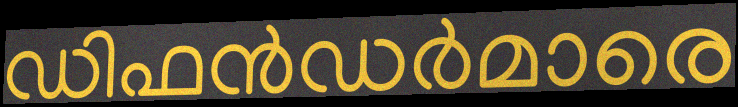
ഡിഫൻഡർമാരെ